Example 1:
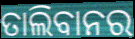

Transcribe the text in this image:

ତାଲିବାନର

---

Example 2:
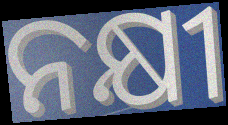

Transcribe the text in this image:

ନକ୍ଷୀ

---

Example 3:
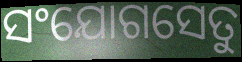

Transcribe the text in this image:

ସଂଯୋଗସେତୁ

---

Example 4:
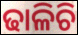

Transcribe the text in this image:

ଢାଳିଚି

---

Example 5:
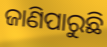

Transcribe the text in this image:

ଜାଣିପାରୁଛି